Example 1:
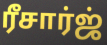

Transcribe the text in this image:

ரீசார்ஜ்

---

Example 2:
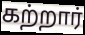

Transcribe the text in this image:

கற்றார்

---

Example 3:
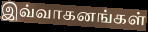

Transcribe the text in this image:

இவ்வாகனங்கள்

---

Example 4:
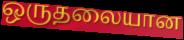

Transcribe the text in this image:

ஒருதலையான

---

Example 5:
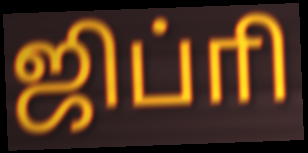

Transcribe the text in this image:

ஜிப்ரி